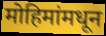
मोहिमांमधून